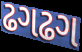
ઢગઢગ